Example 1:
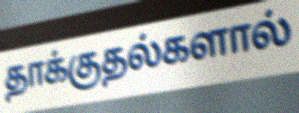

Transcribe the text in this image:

தாக்குதல்களால்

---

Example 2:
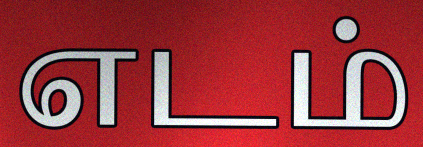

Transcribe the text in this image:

எடம்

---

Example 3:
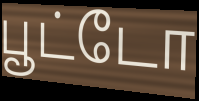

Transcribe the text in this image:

பூட்டோ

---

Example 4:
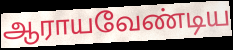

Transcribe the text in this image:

ஆராயவேண்டிய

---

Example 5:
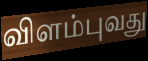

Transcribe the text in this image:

விளம்புவது